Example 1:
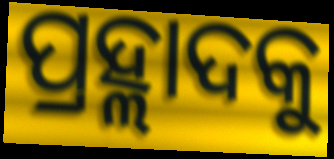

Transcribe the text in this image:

ପ୍ରହ୍ଲାଦକୁ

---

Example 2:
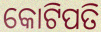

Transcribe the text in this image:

କୋଟିପତି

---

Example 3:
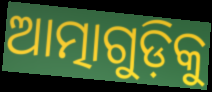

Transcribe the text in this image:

ଆତ୍ମାଗୁଡ଼ିକୁ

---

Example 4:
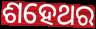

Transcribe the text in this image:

ଶହେଥର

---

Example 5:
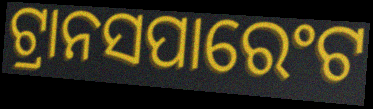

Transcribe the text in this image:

ଟ୍ରାନସପାରେଂଟ